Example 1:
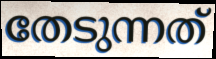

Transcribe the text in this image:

തേടുന്നത്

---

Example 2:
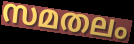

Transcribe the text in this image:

സമതലം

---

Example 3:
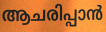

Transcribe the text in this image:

ആചരിപ്പാൻ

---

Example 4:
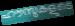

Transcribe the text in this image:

ഹൗസുകളുടെ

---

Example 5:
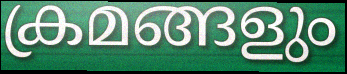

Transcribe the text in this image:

ക്രമങ്ങളും